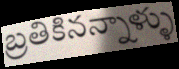
బ్రతికినన్నాళ్ళు